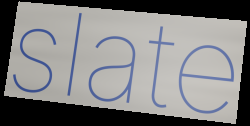
slate